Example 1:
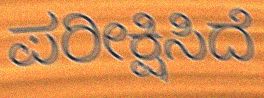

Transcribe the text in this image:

ಪರೀಕ್ಷಿಸಿದೆ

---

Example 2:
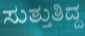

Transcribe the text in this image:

ಸುತ್ತುತಿದ್ದ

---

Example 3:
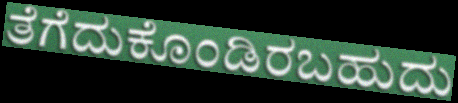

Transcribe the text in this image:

ತೆಗೆದುಕೊಂಡಿರಬಹುದು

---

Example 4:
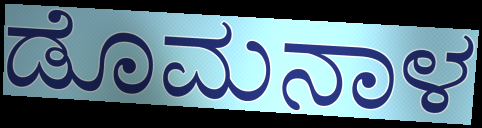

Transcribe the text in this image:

ಡೊಮನಾಳ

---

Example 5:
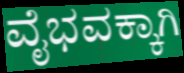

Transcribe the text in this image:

ವೈಭವಕ್ಕಾಗಿ